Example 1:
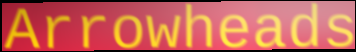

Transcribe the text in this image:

Arrowheads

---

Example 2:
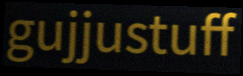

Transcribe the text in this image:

gujjustuff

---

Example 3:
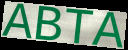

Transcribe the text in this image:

ABTA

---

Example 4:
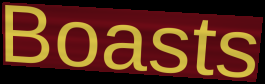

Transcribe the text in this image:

Boasts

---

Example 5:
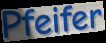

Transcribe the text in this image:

Pfeifer